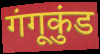
गंगूकुंड